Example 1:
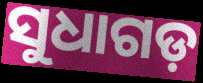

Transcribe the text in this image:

ସୁଧାଗଡ଼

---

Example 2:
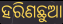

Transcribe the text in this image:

ହରିଣଛୁଆ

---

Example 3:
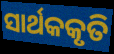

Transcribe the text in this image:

ସାର୍ଥକକୃତି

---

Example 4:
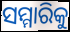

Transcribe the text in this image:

ସମ୍ମାରିକୁ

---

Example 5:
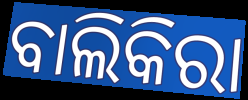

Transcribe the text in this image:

ବାଲିକିରା